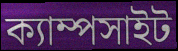
ক্যাম্পসাইট